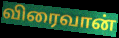
விரைவான்